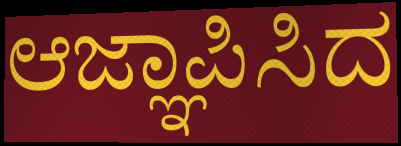
ಆಜ್ಞಾಪಿಸಿದ